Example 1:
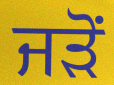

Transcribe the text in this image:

ਜਡ਼ੋਂ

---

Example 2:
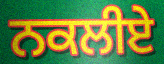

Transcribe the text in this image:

ਨਕਲੀਏ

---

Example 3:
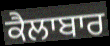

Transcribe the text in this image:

ਕੈਲਾਬਾਰ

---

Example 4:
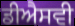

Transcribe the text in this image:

ਡੀਐਸਵੀ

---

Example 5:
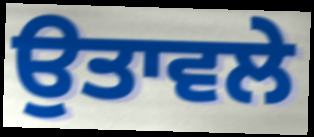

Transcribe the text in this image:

ਉਤਾਵਲੇ